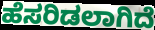
ಹೆಸರಿಡಲಾಗಿದೆ